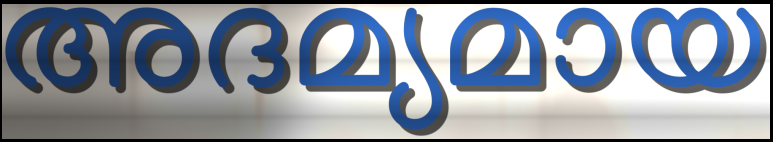
അദമ്യമായ